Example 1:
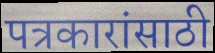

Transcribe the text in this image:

पत्रकारांसाठी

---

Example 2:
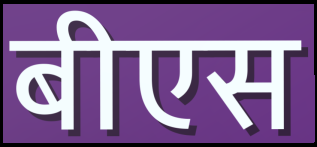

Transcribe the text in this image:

बीएस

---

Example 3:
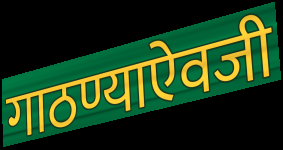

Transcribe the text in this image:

गाठण्याऐवजी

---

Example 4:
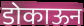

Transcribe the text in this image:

डोकाऊन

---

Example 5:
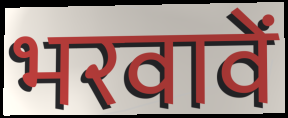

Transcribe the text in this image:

भरवावें